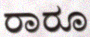
ರಾರೂ